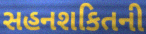
સહનશકિતની